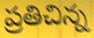
ప్రతిచిన్న